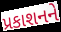
પ્રકાશનને